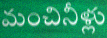
మంచినీళ్లు